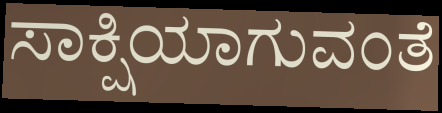
ಸಾಕ್ಷಿಯಾಗುವಂತೆ